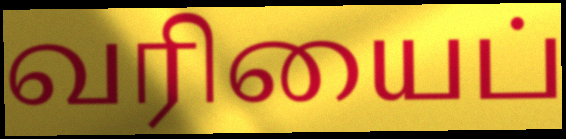
வரியைப்